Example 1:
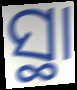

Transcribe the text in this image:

ସ୍ଥା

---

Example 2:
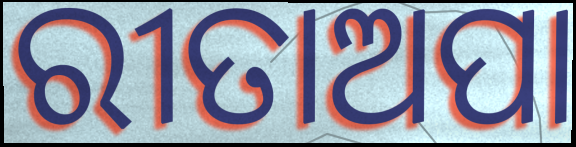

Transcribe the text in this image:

ରୀତାଅପା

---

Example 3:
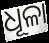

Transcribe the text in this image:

ଧୂଳା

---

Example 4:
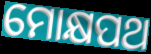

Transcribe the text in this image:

ମୋକ୍ଷପଥ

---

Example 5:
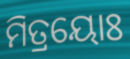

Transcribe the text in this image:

ମିତ୍ରୟୋଃ